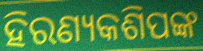
ହିରଣ୍ୟକଶିପଙ୍କ